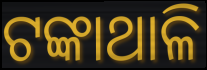
ଟଙ୍କାଥାଳି